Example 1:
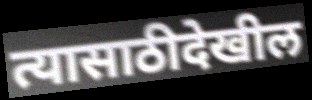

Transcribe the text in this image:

त्यासाठीदेखील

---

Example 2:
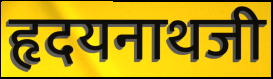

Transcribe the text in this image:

हृदयनाथजी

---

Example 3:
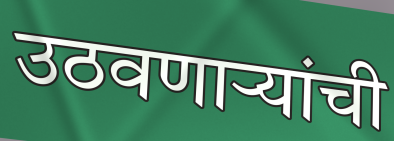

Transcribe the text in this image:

उठवणाऱ्यांची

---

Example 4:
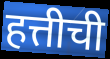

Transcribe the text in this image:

हत्तीची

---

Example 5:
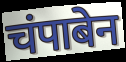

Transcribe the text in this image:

चंपाबेन